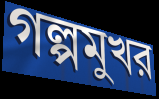
গল্পমুখর